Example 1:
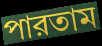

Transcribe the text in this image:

পারতাম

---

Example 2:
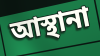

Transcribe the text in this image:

আস্থানা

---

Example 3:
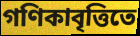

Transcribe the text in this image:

গণিকাবৃত্তিতে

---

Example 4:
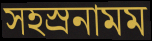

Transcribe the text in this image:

সহস্রনামম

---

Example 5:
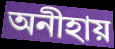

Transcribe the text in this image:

অনীহায়